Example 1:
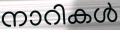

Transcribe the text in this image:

നാറികൾ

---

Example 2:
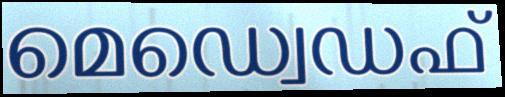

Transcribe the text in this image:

മെഡ്വെഡഫ്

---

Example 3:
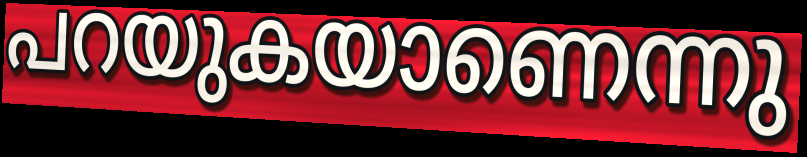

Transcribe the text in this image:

പറയുകയാണെന്നു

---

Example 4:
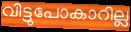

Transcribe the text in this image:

വിട്ടുപോകാറില്ല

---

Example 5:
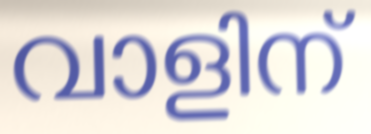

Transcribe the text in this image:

വാളിന്